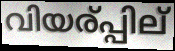
വിയര്പ്പില്